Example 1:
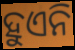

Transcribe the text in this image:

ହୁଏନି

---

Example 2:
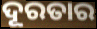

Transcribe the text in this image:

ଦୂରତାର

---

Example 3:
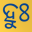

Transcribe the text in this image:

ହୁଃ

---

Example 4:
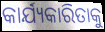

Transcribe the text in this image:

କାର୍ଯ୍ୟକାରିତାକୁ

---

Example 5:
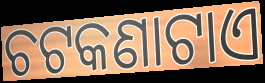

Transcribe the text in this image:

ଚଟକଣାଟାଏ